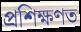
প্ৰশিক্ষণত